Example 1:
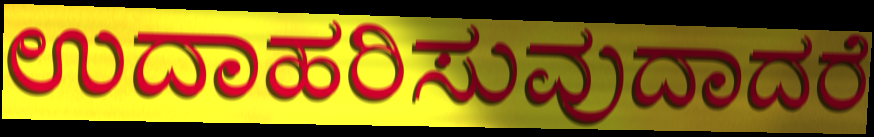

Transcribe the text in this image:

ಉದಾಹರಿಸುವುದಾದರೆ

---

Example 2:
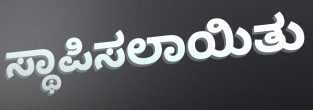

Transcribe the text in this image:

ಸ್ಥಾಪಿಸಲಾಯಿತು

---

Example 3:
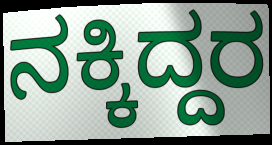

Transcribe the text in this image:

ನಕ್ಕಿದ್ದರ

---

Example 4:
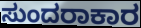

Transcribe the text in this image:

ಸುಂದರಾಕಾರ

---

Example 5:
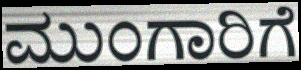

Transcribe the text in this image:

ಮುಂಗಾರಿಗೆ